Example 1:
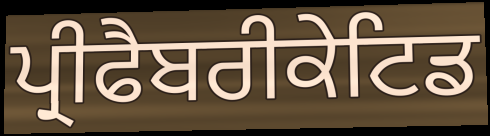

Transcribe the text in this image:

ਪ੍ਰੀਫੈਬਰੀਕੇਟਿਡ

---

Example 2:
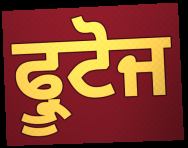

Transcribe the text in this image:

ਫ੍ਰੂਟੋਜ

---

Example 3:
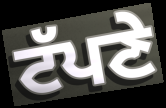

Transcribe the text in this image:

ਟੱਪਣੇ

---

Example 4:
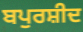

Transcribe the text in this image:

ਬਪੁਰਸ਼ੀਦ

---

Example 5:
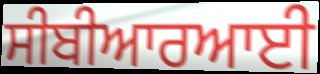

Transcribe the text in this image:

ਸੀਬੀਆਰਆਈ